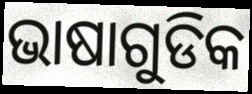
ଭାଷାଗୁଡିକ